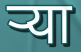
ऱ्या